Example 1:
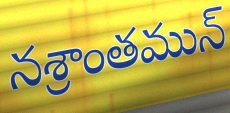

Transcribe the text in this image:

నశ్రాంతమున్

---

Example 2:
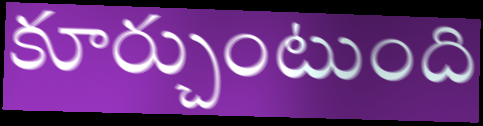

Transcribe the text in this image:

కూర్చుంటుంది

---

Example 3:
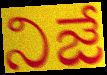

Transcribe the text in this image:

నిజే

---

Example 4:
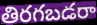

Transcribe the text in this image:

తిరగబడరా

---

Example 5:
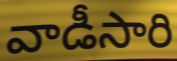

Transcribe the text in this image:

వాడీసారి